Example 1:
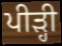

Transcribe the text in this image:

ਪੀੜ੍ਹੀ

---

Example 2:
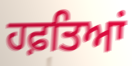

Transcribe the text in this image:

ਹਫ਼ਤਿਆਂ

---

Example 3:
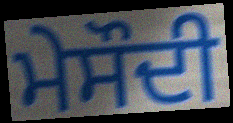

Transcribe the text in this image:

ਮੇਸੌਦੀ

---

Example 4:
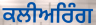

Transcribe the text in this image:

ਕਲੀਅਰਿੰਗ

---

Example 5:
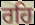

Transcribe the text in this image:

ਰਹਿ